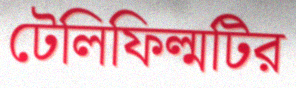
টেলিফিল্মটির